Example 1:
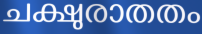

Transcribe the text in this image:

ചക്ഷുരാതതം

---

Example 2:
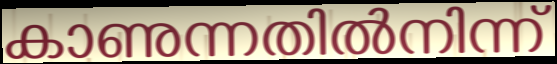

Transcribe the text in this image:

കാണുന്നതിൽനിന്ന്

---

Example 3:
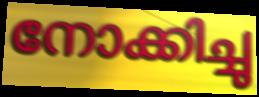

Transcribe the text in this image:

നോക്കിച്ചു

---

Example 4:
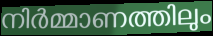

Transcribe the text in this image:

നിർമ്മാണത്തിലും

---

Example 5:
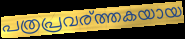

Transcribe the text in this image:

പത്രപ്രവര്ത്തകയായ